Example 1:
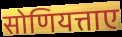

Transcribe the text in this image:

सोणियत्ताए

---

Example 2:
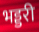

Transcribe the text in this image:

भड्डरी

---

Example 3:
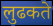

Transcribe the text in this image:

लुढकते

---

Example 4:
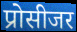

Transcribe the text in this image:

प्रोसीजर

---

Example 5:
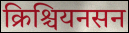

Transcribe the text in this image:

क्रिश्चियनसन